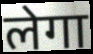
लेगा